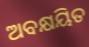
ଅବକ୍ଷୟିତ